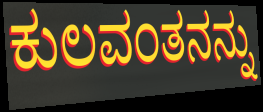
ಕುಲವಂತನನ್ನು